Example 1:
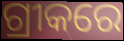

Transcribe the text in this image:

ଗ୍ରୀକରେ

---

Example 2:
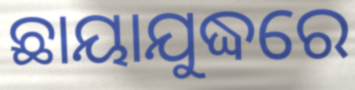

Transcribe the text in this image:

ଛାୟାଯୁଦ୍ଧରେ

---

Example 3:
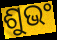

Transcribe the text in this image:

ଶୁଭଂ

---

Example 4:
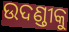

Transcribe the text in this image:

ଉଦଣ୍ଡୀକୁ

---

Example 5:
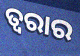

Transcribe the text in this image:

ତ୍ୱରାର